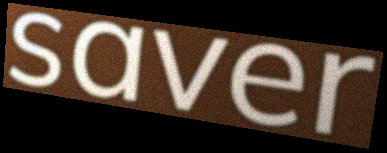
saver